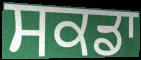
ਸਕਡਾ